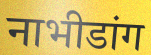
नाभीडांग